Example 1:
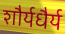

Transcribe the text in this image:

शौर्यधैर्य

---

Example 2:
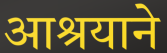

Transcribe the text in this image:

आश्रयाने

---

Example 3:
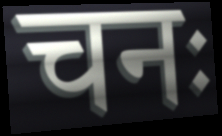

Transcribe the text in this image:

चनः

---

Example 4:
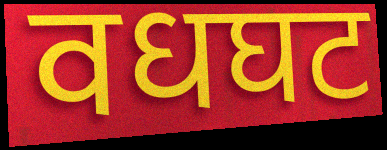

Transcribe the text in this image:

वधघट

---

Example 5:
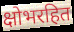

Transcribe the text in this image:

क्षोभरहित